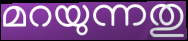
മറയുന്നതു